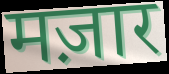
मज़ार